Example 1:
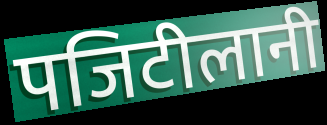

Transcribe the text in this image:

पजिटीलानी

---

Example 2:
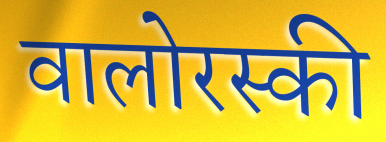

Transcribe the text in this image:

वालोरस्की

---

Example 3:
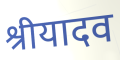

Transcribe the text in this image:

श्रीयादव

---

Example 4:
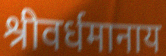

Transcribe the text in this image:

श्रीवर्धमानाय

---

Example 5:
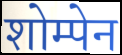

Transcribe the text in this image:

शोम्पेन